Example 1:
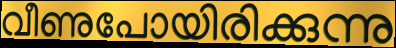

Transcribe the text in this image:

വീണുപോയിരിക്കുന്നു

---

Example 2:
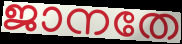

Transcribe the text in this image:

ജാനതേ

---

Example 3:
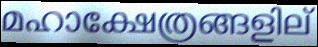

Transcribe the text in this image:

മഹാക്ഷേത്രങ്ങളില്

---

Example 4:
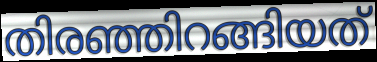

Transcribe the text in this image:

തിരഞ്ഞിറങ്ങിയത്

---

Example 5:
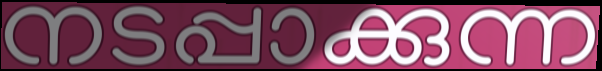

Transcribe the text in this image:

നടപ്പാക്കുന്ന